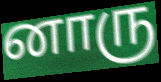
னாரு